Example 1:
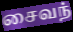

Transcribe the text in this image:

சைவந்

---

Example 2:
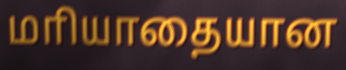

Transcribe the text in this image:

மரியாதையான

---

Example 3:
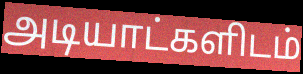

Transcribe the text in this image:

அடியாட்களிடம்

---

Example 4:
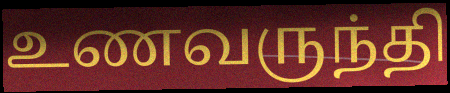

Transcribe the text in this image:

உணவருந்தி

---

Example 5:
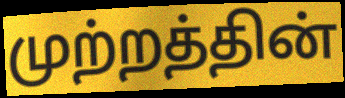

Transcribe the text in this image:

முற்றத்தின்